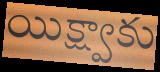
యిక్ష్వాకు